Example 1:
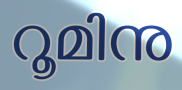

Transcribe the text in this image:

റൂമിനു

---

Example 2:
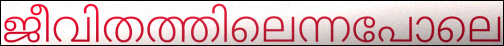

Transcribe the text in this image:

ജീവിതത്തിലെന്നപോലെ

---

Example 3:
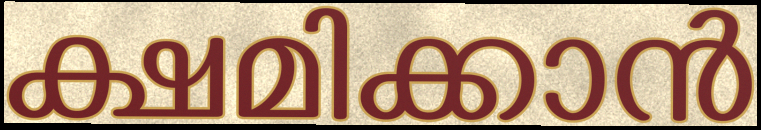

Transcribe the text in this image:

ക്ഷമിക്കാൻ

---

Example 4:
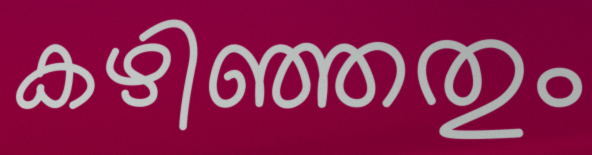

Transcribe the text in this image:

കഴിഞ്ഞതും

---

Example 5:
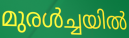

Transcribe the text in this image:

മുരൾച്ചയിൽ